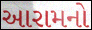
આરામનો